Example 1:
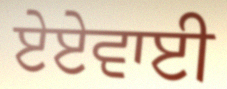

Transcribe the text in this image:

ਏਏਵਾਈ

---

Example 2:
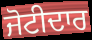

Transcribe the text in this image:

ਜੋਟੀਦਾਰ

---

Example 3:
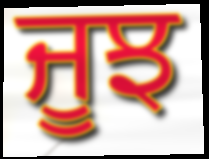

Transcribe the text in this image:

ਜੂਝ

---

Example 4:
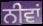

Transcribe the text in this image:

ਨੀਵਾਂ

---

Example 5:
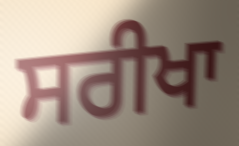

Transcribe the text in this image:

ਸਰੀਖਾ